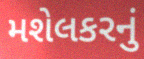
મશેલકરનું